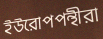
ইউরোপপন্থীরা